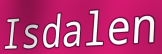
Isdalen